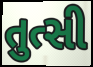
તુત્સી